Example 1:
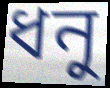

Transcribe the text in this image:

ধনু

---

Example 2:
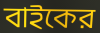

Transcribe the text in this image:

বাইকের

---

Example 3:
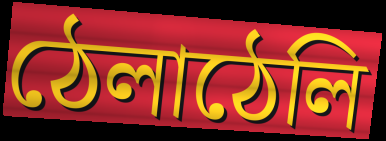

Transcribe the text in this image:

ঠেলাঠেলি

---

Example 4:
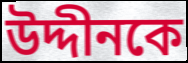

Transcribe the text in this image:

উদ্দীনকে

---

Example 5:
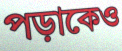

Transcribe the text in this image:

পড়াকেও